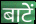
बाटें